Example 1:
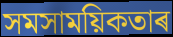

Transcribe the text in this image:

সমসাময়িকতাৰ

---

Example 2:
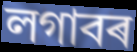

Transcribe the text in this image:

লগাবৰ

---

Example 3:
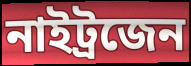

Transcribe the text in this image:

নাইট্ৰজেন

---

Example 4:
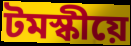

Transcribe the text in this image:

টমস্কীয়ে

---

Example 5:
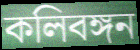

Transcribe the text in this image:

কলিবঙ্গন